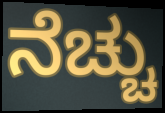
ನೆಚ್ಚು